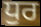
ਧੁਰ